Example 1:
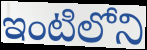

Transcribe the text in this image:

ఇంటిలోని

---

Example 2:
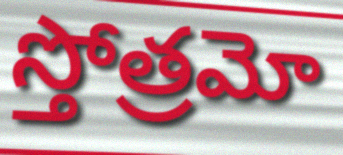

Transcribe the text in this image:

స్తోత్రమో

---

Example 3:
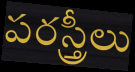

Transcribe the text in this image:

పరస్త్రీలు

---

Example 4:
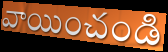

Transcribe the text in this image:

వాయించండి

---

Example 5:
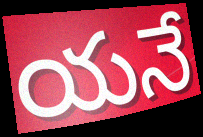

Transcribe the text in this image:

యనే